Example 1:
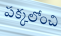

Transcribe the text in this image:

పక్కలోంచి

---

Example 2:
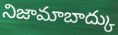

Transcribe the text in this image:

నిజామాబాద్కు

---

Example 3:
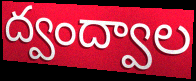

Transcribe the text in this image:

ద్వంద్వాల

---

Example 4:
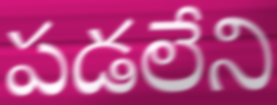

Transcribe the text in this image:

పడలేని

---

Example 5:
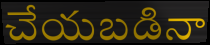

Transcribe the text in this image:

చేయబడినా